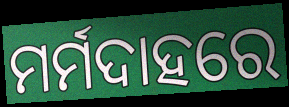
ମର୍ମଦାହରେ